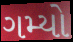
ગમ્યો